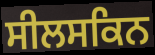
ਸੀਲਸਕਿਨ